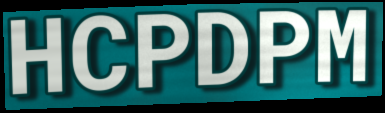
HCPDPM